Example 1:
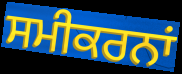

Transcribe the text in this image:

ਸਮੀਕਰਨਾਂ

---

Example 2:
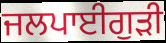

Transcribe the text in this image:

ਜਲਪਾਈਗੁਡ਼ੀ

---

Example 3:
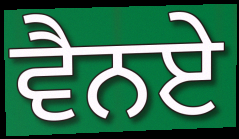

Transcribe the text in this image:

ਵੈਨਏ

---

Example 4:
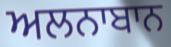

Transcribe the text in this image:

ਅਲਨਾਬਾਨ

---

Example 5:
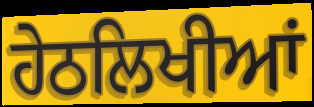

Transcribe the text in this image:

ਹੇਠਲਿਖੀਆਂ